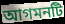
আগমনটি